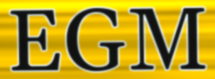
EGM